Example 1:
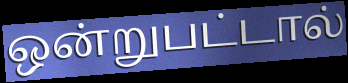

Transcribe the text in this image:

ஒன்றுபட்டால்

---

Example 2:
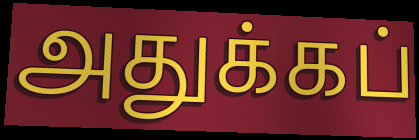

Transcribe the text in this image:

அதுக்கப்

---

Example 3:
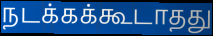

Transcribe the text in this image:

நடக்கக்கூடாதது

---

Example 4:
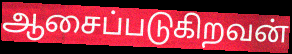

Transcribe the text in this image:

ஆசைப்படுகிறவன்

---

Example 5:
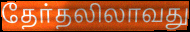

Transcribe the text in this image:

தேர்தலிலாவது